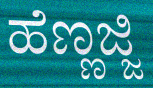
ಹೆಣ್ಣಜ್ಜಿ